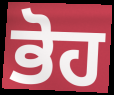
ਭੋਹ